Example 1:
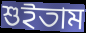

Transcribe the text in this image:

শুইতাম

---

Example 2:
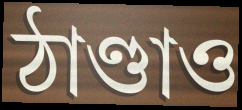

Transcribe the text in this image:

ঠাণ্ডাও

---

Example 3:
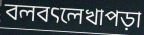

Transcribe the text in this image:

বলবৎলেখাপড়া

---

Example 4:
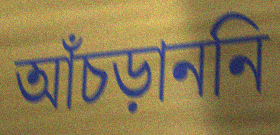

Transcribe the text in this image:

আঁচড়াননি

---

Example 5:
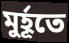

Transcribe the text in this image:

মুর্হূতে